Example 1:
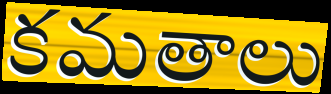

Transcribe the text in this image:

కమతాలు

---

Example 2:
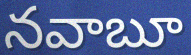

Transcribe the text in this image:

నవాబూ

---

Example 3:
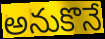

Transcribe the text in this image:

అనుకొనే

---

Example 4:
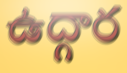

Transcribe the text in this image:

ఉద్గార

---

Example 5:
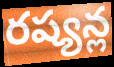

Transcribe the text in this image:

రష్యన్ల